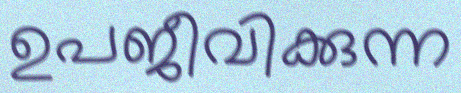
ഉപജീവിക്കുന്ന